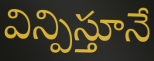
విన్పిస్తూనే